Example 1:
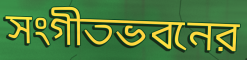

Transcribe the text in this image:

সংগীতভবনের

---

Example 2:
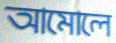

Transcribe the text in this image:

আমোলে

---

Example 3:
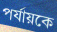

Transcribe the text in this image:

পর্যায়কে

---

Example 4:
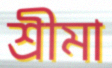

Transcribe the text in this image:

শ্রীমা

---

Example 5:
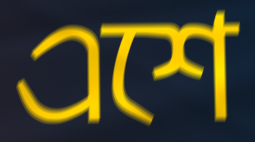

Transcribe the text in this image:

এশে